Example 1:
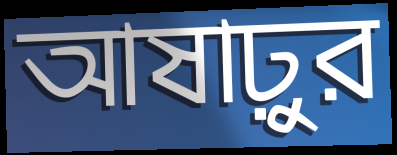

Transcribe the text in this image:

আষাঢ়ুর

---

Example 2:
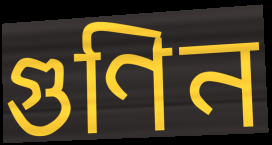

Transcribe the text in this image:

গুণিন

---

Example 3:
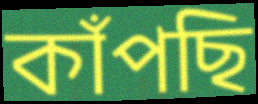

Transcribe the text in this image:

কাঁপছি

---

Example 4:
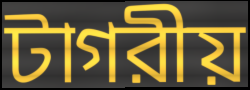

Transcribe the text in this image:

টাগরীয়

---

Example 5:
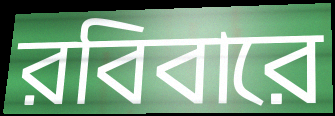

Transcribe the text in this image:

রবিবারে